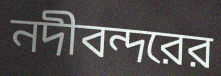
নদীবন্দরের